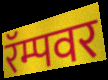
रॅम्पवर